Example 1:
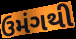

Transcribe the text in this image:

ઉમંગથી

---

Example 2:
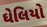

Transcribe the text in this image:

ઘેલિયો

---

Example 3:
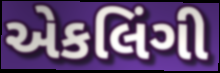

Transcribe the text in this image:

એકલિંગી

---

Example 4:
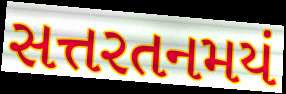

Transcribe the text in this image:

સત્તરતનમયં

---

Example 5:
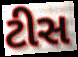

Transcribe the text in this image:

ટીસ